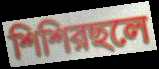
শিশিরছলে